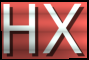
HX